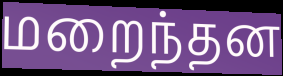
மறைந்தன